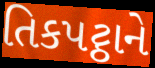
તિકપટ્ઠાને